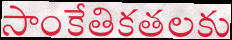
సాంకేతికతలకు